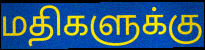
மதிகளுக்கு